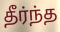
தீர்ந்த